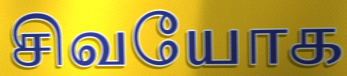
சிவயோக